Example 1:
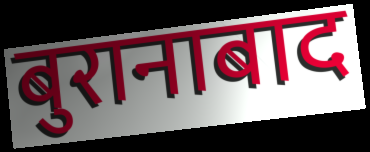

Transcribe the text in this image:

बुरानाबाद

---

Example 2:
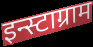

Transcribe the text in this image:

इन्स्टाग्राम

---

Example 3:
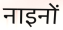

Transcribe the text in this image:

नाइनों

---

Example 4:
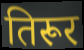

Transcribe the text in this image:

तिरूर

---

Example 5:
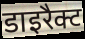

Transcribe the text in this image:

डाइरैक्ट